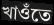
খাওঁতে